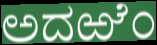
ಅದಱೆಂ